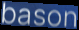
bason